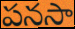
పనసా